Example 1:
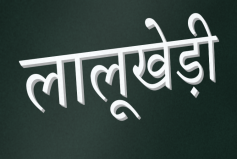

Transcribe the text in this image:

लालूखेड़ी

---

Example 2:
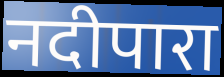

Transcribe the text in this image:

नदीपारा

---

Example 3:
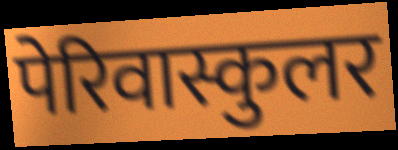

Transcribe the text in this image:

पेरिवास्कुलर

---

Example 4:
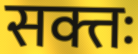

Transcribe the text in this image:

सक्तः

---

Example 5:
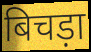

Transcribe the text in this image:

बिचड़ा